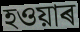
হওয়াৰ